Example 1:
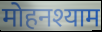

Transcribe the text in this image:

मोहनश्याम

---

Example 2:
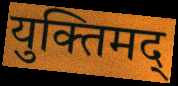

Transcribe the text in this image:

युक्तिमद्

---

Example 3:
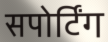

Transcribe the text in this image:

सपोर्टिंग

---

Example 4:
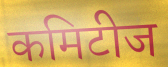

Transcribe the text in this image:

कमिटीज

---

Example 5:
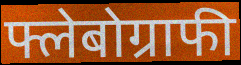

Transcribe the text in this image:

फ्लेबोग्राफी